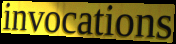
invocations